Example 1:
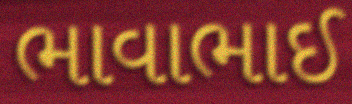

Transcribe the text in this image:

ભાવાભાઈ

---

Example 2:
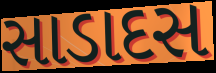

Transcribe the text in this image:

સાડાદસ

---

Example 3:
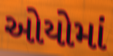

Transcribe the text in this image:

ઓયોમાં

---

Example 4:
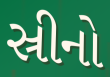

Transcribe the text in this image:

સ્રીનો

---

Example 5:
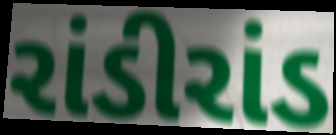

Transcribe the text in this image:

રાંડીરાંડ